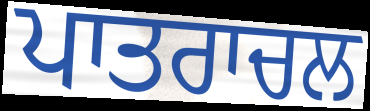
ਪਾਤਰਾਚਲ